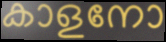
കാളനോ